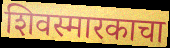
शिवस्मारकाचा